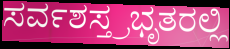
ಸರ್ವಶಸ್ತ್ರಭೃತರಲ್ಲಿ